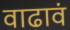
वाढावं